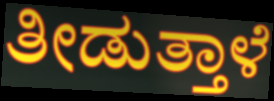
ತೀಡುತ್ತಾಳೆ